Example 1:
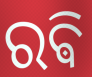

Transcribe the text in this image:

ରଵି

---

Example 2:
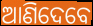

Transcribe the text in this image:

ଆଣିଦେବେ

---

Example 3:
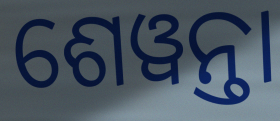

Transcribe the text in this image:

ଶେୱନ୍ତା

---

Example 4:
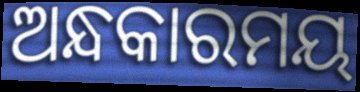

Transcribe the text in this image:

ଅନ୍ଧକାରମୟ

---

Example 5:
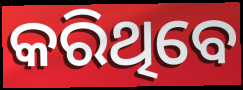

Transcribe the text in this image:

କରିଥିବେ